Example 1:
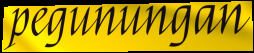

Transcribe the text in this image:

pegunungan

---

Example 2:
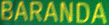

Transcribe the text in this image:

BARANDA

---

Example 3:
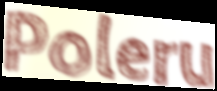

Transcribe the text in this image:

Poleru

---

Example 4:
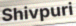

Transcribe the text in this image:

Shivpuri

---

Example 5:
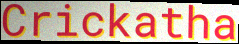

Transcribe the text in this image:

Crickatha